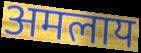
अमलाय